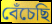
বেঁচেছি